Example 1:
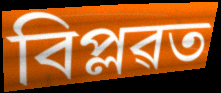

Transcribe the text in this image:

বিপ্লৱত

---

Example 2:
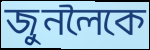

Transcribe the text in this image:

জুনলৈকে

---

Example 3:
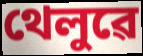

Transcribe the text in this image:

থেলুৱে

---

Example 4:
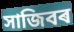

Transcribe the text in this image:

সাজিবৰ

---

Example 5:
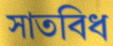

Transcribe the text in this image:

সাতবিধ